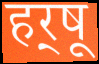
हर्षू